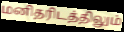
மனிதரிடத்திலும்